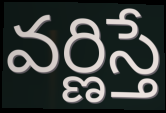
వర్ణిస్తే